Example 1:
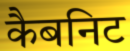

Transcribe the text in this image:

कैबनिट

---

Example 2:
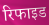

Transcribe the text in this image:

रिफाइड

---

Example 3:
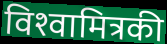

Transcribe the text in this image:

विश्वामित्रकी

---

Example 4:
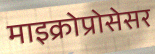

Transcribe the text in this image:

माइक्रोप्रोसेसर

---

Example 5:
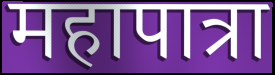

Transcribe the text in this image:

महापात्रा